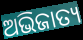
ଅଭିଜାତ୍ୟ